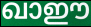
ഖാഈ